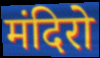
मंदिरो